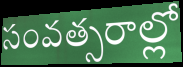
సంవత్సరాల్లో